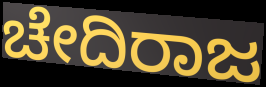
ಚೇದಿರಾಜ